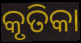
କୃତିକା